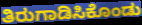
ತಿರುಗಾಡಿಸಿಕೊಂಡು